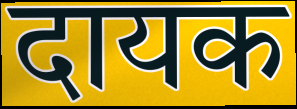
दायक